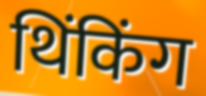
थिंकिंग